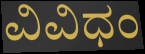
ವಿವಿಧಂ